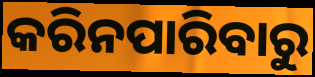
କରିନପାରିବାରୁ